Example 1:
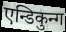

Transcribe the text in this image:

एन्डिकुन्ग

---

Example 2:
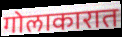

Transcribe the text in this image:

गोलाकारात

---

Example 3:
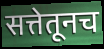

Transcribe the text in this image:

सत्तेतूनच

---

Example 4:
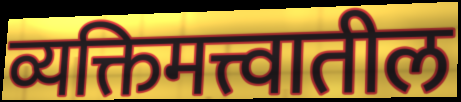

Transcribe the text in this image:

व्यक्तिमत्त्वातील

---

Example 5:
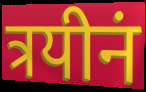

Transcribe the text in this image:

त्रयीनं